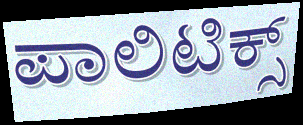
ಪಾಲಿಟಿಕ್ಸ್